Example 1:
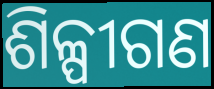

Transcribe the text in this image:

ଶିଳ୍ପୀଗଣ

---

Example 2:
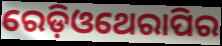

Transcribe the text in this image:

ରେଡ଼ିଓଥେରାପିର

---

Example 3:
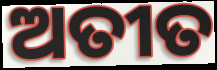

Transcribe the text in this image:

ଅତୀତ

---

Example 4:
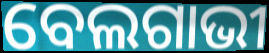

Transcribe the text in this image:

ବେଲଗାଭୀ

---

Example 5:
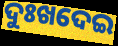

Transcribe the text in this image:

ଦୁଃଖଦେଇ